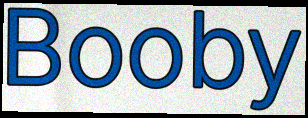
Booby